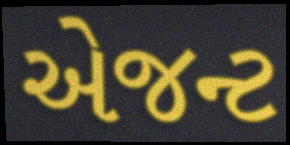
એજન્ટ